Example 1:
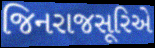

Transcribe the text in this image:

જિનરાજસૂરિએ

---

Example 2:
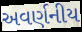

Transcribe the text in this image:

અવર્ણનીય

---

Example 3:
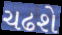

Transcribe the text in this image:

ચઢશે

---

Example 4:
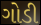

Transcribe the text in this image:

ગોડી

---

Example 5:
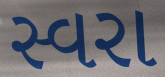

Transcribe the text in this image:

સ્વરા